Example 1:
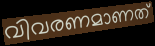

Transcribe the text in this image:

വിവരണമാണത്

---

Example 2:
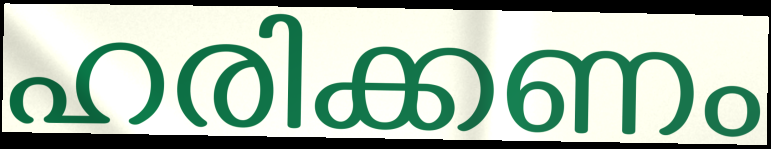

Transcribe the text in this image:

ഹരിക്കണം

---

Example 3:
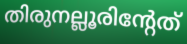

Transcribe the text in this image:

തിരുനല്ലൂരിന്റേത്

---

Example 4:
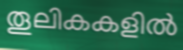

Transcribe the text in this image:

തൂലികകളിൽ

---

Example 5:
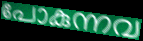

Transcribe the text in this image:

പോകുന്നവ